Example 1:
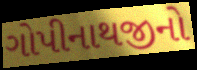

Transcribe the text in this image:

ગોપીનાથજીનો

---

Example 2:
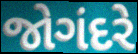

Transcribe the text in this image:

જોગંદરે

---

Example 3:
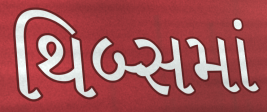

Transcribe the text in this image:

થિબ્સમાં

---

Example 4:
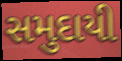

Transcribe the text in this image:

સમુદાયી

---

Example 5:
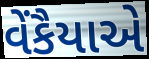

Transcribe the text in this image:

વેંકૈયાએ